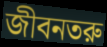
জীবনতরু